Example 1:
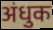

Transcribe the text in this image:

अंधुक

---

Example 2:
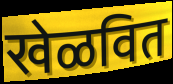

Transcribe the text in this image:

खेळवित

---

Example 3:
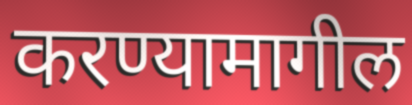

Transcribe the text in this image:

करण्यामागील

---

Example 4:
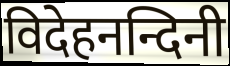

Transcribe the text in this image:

विदेहनन्दिनी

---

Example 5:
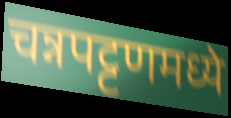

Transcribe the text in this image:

चन्नपट्टणमध्ये